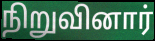
நிறுவினார்